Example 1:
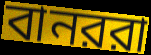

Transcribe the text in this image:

বানররা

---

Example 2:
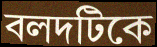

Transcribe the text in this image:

বলদটিকে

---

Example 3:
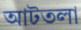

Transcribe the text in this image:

আটতলা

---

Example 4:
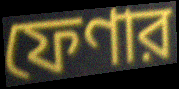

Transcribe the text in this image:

ফেণার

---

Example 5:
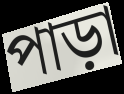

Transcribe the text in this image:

পাড়া